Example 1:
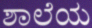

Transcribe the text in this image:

ಶಾಲೆಯ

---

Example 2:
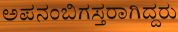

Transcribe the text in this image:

ಅಪನಂಬಿಗಸ್ತರಾಗಿದ್ದರು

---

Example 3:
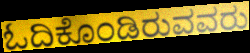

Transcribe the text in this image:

ಓದಿಕೊಂಡಿರುವವರು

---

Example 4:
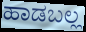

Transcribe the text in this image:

ಹಾಡಬಲ್ಲ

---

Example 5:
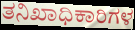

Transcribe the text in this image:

ತನಿಖಾಧಿಕಾರಿಗಳ